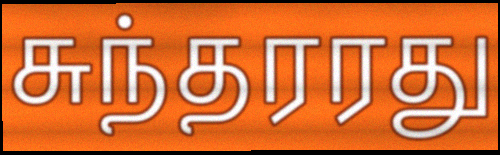
சுந்தரரது